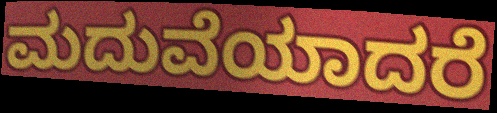
ಮದುವೆಯಾದರೆ